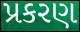
પ્રકરણ